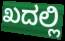
ಖದಲ್ಲಿ